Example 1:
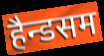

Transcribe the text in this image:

हैन्डसम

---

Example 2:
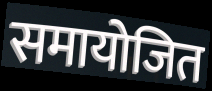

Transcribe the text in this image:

समायोजित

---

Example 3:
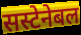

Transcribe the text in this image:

सस्टेनेबल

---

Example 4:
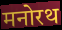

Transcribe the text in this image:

मनोरथ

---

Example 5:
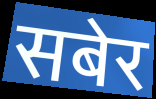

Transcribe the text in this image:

सबेर